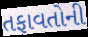
તફાવતોની